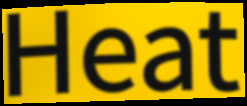
Heat